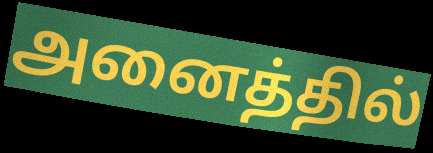
அனைத்தில்